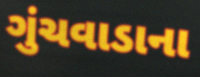
ગુંચવાડાના